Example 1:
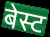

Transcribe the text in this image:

बेस्ट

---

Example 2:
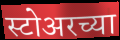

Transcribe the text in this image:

स्टोअरच्या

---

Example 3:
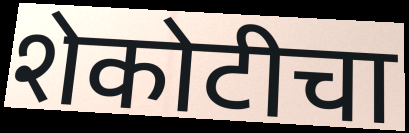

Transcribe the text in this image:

शेकोटीचा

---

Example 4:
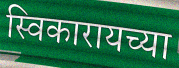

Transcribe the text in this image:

स्विकारायच्या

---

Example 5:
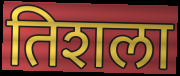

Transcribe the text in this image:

तिशला